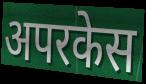
अपरकेस